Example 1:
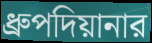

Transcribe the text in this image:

ধ্রুপদিয়ানার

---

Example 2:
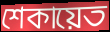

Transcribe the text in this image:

শেকায়েত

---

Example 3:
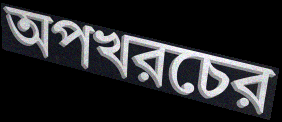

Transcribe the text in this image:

অপখরচের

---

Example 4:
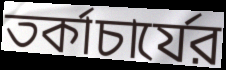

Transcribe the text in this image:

তর্কাচার্যের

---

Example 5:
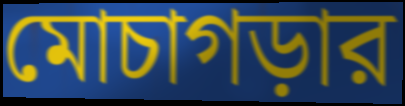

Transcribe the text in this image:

মোচাগড়ার